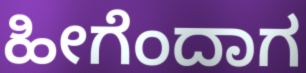
ಹೀಗೆಂದಾಗ